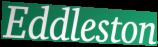
Eddleston